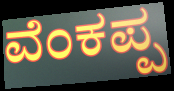
ವೆಂಕಪ್ಪ